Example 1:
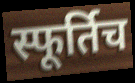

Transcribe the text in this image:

स्फूर्तिच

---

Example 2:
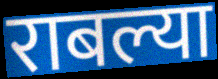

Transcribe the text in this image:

राबल्या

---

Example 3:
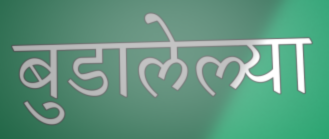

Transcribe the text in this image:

बुडालेल्या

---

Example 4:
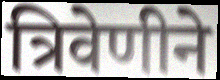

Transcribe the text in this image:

त्रिवेणीने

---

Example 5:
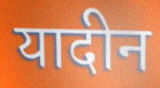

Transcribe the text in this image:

यादीन